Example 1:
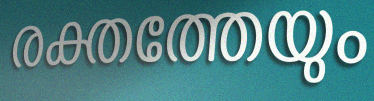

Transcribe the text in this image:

രക്തത്തേയും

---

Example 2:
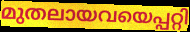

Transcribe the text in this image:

മുതലായവയെപ്പറ്റി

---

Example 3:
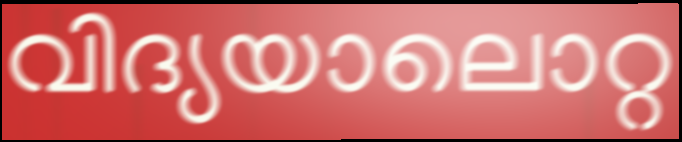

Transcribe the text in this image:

വിദ്യയാലൊറ്റ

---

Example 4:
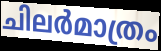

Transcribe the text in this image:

ചിലർമാത്രം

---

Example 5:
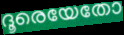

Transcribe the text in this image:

ദൂരെയേതോ